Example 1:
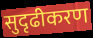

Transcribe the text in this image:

सुदृढीकरण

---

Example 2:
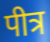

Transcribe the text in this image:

पीत्र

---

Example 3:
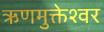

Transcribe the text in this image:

ऋणमुक्तेश्वर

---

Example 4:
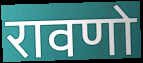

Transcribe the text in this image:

रावणो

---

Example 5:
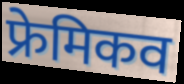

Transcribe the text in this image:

फ्रेमिकव